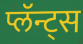
प्लॅन्ट्स